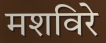
मशविरे